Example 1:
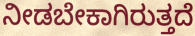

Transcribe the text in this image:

ನೀಡಬೇಕಾಗಿರುತ್ತದೆ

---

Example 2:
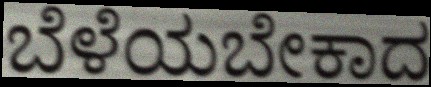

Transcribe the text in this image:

ಬೆಳೆಯಬೇಕಾದ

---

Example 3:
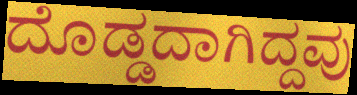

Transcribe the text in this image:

ದೊಡ್ಡದಾಗಿದ್ದವು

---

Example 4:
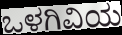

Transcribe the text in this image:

ಒಳಗಿವಿಯ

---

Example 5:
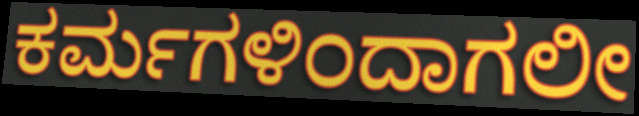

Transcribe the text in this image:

ಕರ್ಮಗಳಿಂದಾಗಲೀ